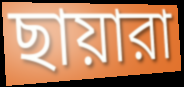
ছায়ারা